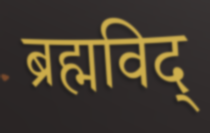
ब्रह्मविद्